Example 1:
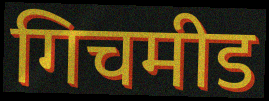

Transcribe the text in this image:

गिचमीड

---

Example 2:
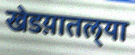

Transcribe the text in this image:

खेडय़ातल्या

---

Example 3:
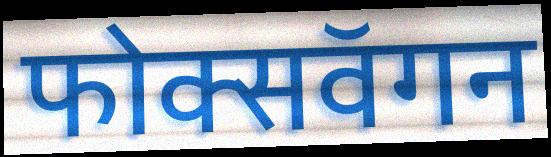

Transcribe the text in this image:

फोक्सवॅगन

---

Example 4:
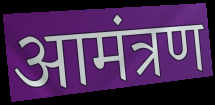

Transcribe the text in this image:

आमंत्रण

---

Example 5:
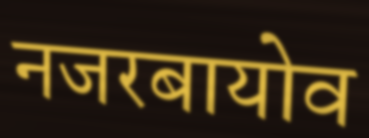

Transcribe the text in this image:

नजरबायोव